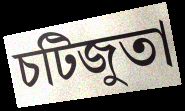
চটিজুতা